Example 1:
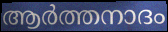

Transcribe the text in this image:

ആർത്തനാദം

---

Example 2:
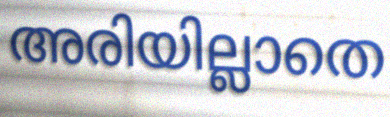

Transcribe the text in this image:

അരിയില്ലാതെ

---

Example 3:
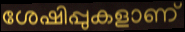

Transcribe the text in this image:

ശേഷിപ്പുകളാണ്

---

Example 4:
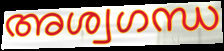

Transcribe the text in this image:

അശ്വഗന്ധ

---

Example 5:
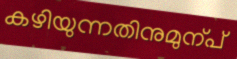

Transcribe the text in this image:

കഴിയുന്നതിനുമുന്പ്